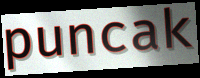
puncak